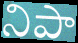
నిపా